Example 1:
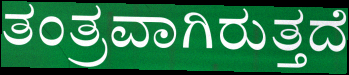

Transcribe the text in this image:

ತಂತ್ರವಾಗಿರುತ್ತದೆ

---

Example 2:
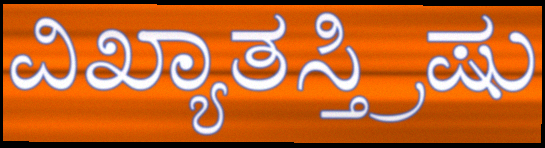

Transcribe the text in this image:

ವಿಖ್ಯಾತಸ್ತ್ರಿಷು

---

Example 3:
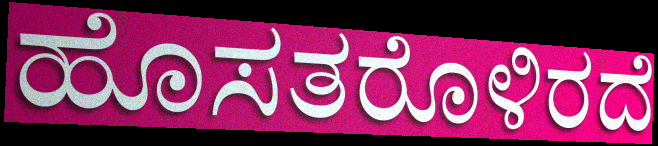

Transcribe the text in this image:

ಹೊಸತರೊಳಿರದೆ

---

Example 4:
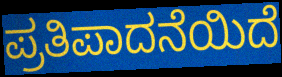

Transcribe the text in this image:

ಪ್ರತಿಪಾದನೆಯಿದೆ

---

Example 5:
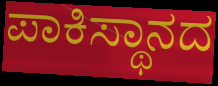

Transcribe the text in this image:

ಪಾಕಿಸ್ಥಾನದ